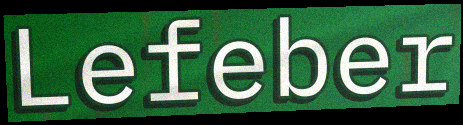
Lefeber